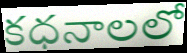
కధనాలలో